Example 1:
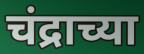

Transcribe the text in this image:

चंद्राच्या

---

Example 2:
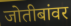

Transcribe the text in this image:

जोतीबांवर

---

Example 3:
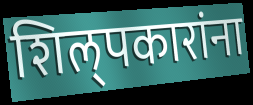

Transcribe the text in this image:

शिल्पकारांना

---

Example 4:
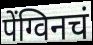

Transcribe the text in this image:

पेंग्विनचं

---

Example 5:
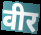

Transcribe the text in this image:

वीर